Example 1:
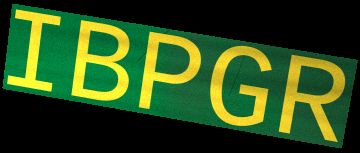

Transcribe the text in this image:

IBPGR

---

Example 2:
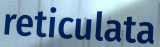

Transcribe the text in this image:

reticulata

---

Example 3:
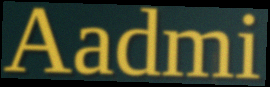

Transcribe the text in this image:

Aadmi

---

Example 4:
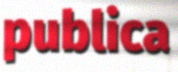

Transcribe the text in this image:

publica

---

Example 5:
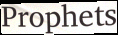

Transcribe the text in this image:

Prophets